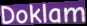
Doklam